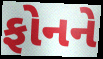
ફોનને